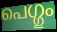
പെഗ്ഗും